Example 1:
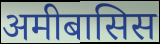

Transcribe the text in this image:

अमीबासिस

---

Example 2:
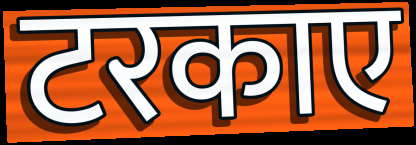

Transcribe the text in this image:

टरकाए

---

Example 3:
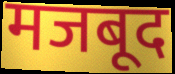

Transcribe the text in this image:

मजबूद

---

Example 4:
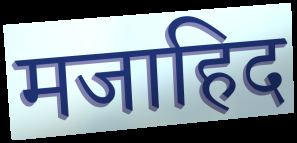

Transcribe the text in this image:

मजाहिद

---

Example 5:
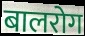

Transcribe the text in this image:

बालरोग